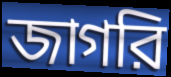
জাগরি